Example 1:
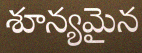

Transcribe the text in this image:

శూన్యమైన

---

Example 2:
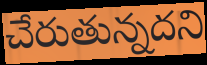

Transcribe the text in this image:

చేరుతున్నదని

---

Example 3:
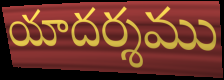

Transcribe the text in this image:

యాదర్శము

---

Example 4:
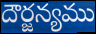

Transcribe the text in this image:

దౌర్జన్యము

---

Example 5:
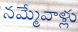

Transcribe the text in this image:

నమ్మేవాళ్లు